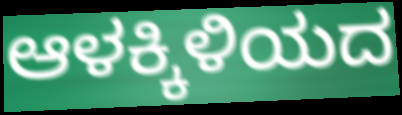
ಆಳಕ್ಕಿಳಿಯದ